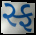
સ્ફ